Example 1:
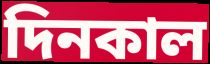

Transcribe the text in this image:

দিনকাল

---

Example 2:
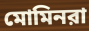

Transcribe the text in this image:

মোমিনরা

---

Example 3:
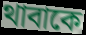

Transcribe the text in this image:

থাবাকে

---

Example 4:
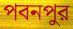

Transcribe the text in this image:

পবনপুর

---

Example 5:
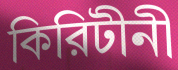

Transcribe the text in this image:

কিরিটীনী